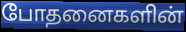
போதனைகளின்